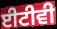
ਈਟੀਵੀ